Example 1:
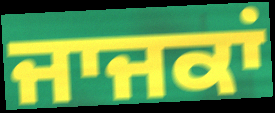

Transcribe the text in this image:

ਜਾਜਕਾਂ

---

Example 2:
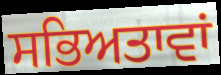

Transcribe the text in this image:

ਸਭਿਅਤਾਵਾਂ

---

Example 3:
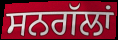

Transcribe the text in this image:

ਸਨਗੱਲਾਂ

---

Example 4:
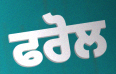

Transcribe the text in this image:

ਫਰੋਲ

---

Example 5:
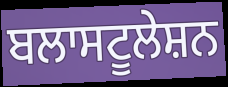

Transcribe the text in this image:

ਬਲਾਸਟੂਲੇਸ਼ਨ